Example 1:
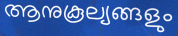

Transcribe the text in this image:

ആനുകൂല്യങ്ങളും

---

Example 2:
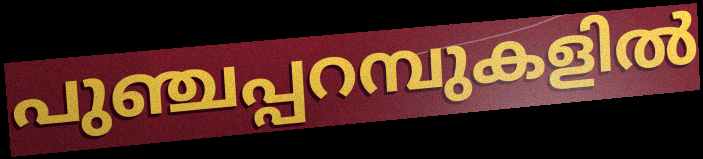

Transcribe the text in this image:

പുഞ്ചപ്പറമ്പുകളിൽ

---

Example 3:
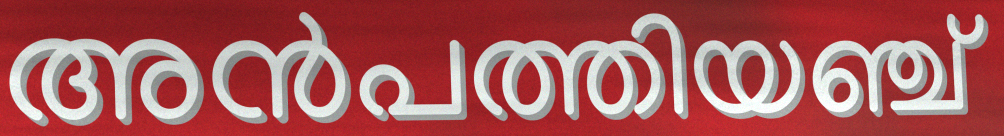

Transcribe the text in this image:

അൻപത്തിയഞ്ച്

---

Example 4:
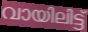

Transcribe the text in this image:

വായിലിട്ട്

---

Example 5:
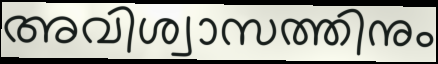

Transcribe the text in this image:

അവിശ്വാസത്തിനും